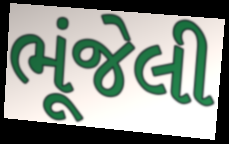
ભૂંજેલી